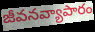
జీవనవ్యాపారం